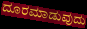
ದೂರಮಾಡುವುದು